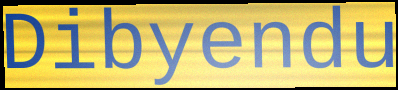
Dibyendu